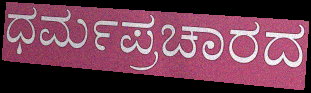
ಧರ್ಮಪ್ರಚಾರದ